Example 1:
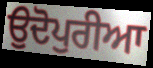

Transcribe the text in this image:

ਉਦੋਪੁਰੀਆ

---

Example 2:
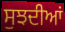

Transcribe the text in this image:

ਸੁਝਦੀਆਂ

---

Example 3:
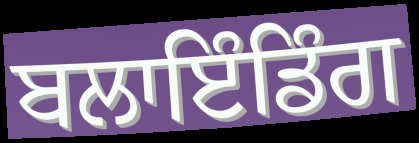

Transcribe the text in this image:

ਬਲਾਇੰਡਿੰਗ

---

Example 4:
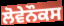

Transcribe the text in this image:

ਲੋਵੇਨੌਕਸ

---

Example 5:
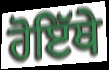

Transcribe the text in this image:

ਹੋਇੱਥੇ